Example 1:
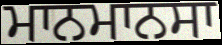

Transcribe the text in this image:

ਮਾਨਮਾਨਸਾ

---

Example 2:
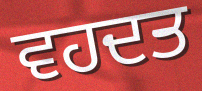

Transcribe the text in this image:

ਵਹਦਤ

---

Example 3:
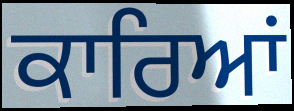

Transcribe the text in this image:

ਕਾਰਿਆਂ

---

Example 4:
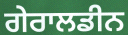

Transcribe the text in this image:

ਗੇਰਾਲਡੀਨ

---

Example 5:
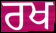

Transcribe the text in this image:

ਰਖ